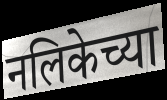
नलिकेच्या